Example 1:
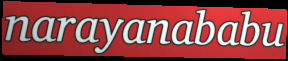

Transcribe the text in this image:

narayanababu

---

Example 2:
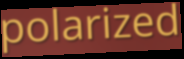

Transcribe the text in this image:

polarized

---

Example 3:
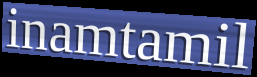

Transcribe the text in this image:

inamtamil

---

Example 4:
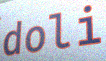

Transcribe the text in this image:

doli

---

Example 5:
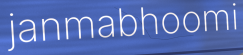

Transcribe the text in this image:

janmabhoomi